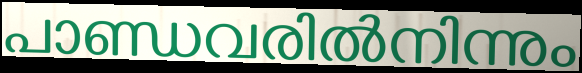
പാണ്ഡവരിൽനിന്നും